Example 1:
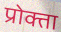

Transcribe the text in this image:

प्रोक्ता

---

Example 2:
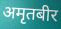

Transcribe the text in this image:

अमृतबीर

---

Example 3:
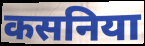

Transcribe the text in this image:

कसनिया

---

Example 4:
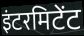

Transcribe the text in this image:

इंटरमिटेंट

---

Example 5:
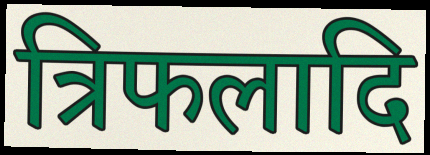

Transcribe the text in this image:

त्रिफलादि